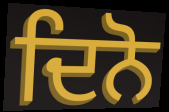
ਦਿਨੋ